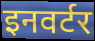
इनवर्टर